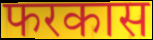
फरकास